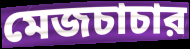
মেজচাচার